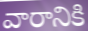
వారానికి